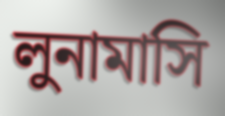
লুনামাসি